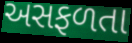
અસફળતા